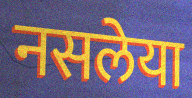
नसलेया